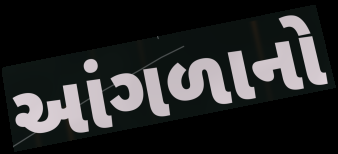
આંગળાનો